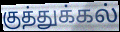
குத்துக்கல்